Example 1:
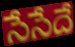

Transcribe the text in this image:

సేసేదే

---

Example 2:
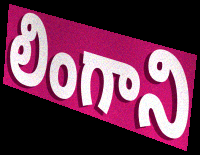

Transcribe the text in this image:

లింగాని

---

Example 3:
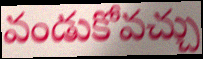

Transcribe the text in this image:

వండుకోవచ్చు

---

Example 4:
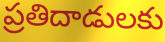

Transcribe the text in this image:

ప్రతిదాడులకు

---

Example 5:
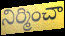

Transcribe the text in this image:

నిర్మించా